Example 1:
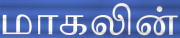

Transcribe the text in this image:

மாகலின்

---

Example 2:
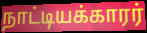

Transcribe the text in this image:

நாட்டியக்காரர்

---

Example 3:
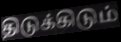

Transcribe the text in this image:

திடுக்கிடும்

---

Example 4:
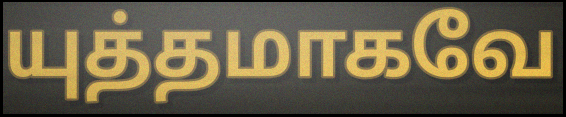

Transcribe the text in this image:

யுத்தமாகவே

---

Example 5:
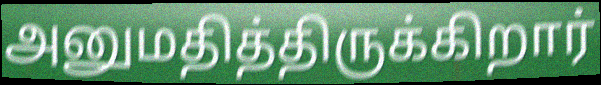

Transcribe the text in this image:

அனுமதித்திருக்கிறார்